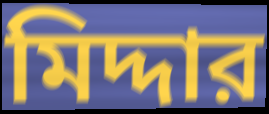
মিদ্দার